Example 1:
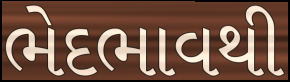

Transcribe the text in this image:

ભેદભાવથી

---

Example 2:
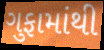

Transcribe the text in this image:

ગુફામાંથી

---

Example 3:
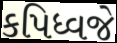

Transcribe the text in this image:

કપિધ્વજે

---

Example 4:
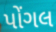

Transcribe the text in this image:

પોંગલ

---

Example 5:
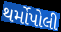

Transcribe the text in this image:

થર્મોપોલી